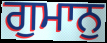
ਗੁਮਾਨੁ